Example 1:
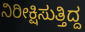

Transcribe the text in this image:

ನಿರೀಕ್ಷಿಸುತ್ತಿದ್ದ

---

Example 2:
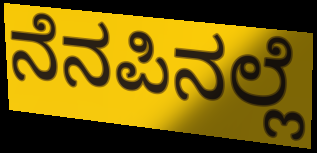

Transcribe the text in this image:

ನೆನಪಿನಲ್ಲೆ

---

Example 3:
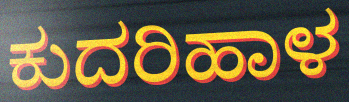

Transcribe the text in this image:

ಕುದರಿಹಾಳ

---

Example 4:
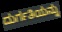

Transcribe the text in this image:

ದುರ್ಗತಿಯನ್ನು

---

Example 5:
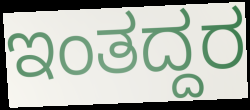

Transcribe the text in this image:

ಇಂತದ್ದರ